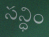
సన్ధిం